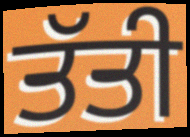
ਤੱਤੀ